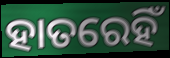
ହାତରେହିଁ